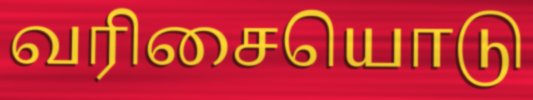
வரிசையொடு